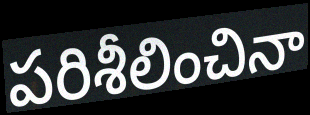
పరిశీలించినా